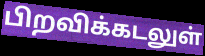
பிறவிக்கடலுள்